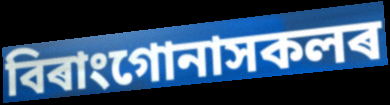
বিৰাংগোনাসকলৰ